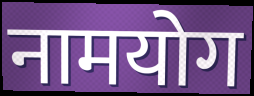
नामयोग